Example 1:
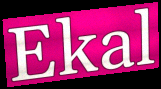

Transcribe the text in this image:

Ekal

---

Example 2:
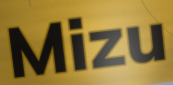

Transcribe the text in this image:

Mizu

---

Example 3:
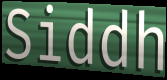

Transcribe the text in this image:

Siddh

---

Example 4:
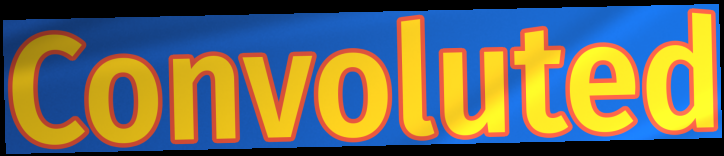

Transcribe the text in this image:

Convoluted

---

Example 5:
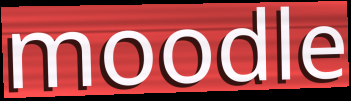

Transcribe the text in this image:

moodle